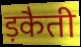
ड़कैती